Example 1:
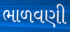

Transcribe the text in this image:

ભાળવણી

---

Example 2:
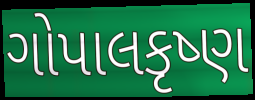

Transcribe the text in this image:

ગોપાલકૃષ્ણ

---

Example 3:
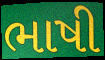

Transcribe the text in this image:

ભાષી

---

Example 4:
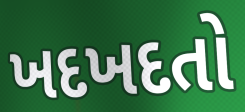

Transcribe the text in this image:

ખદખદતો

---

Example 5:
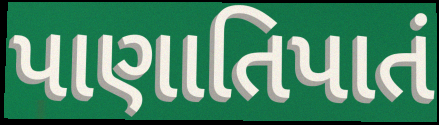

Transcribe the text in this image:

પાણાતિપાતં